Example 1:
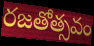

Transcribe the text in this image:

రజతోత్సవం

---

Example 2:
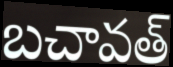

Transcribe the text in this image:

బచావత్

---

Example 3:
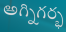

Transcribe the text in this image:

అగ్నిగర్భ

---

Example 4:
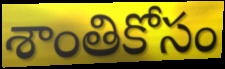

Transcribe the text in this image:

శాంతికోసం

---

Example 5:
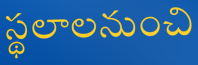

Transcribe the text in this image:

స్థలాలనుంచి